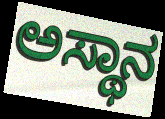
ಅಸ್ಥಾನ